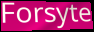
Forsyte